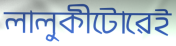
লালুকীটোৱেই